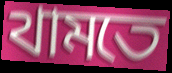
থামতে